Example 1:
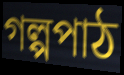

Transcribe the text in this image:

গল্পপাঠ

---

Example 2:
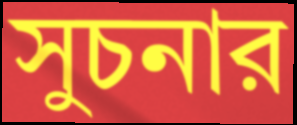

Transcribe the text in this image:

সুচনার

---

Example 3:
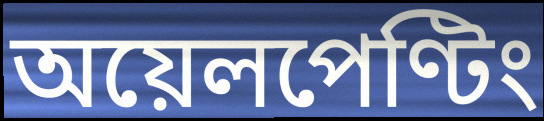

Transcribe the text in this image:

অয়েলপেণ্টিং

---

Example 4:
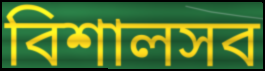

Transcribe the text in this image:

বিশালসব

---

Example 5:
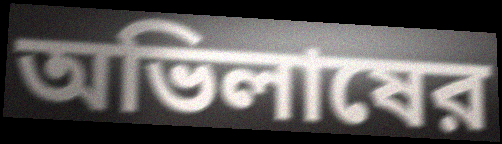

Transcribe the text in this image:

অভিলাষের